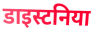
डाइस्टनिया